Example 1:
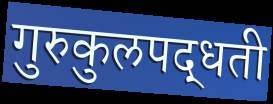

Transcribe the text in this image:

गुरुकुलपद्धती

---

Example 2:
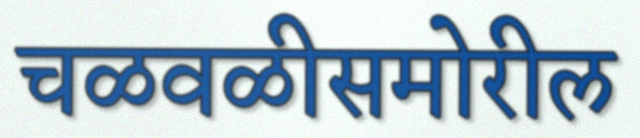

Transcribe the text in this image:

चळवळीसमोरील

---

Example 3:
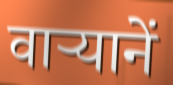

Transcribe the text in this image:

वार्‍यानें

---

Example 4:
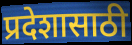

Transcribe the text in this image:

प्रदेशासाठी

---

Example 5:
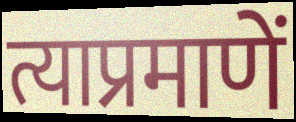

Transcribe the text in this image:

त्याप्रमाणें